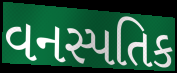
વનસ્પતિક